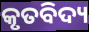
କୃତବିଦ୍ୟ